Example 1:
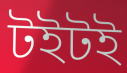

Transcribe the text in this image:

টইটই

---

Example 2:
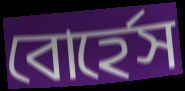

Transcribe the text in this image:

বোর্হেস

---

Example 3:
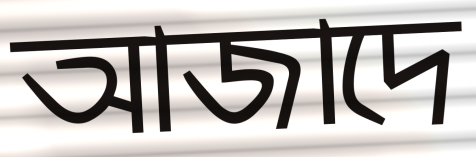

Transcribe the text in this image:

আজাদে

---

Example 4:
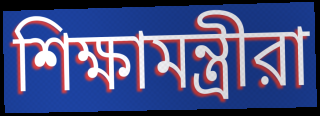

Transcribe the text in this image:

শিক্ষামন্ত্রীরা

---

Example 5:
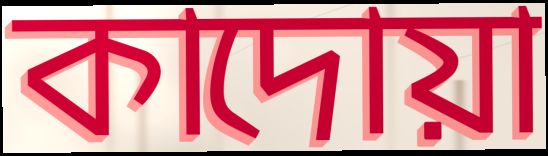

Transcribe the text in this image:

কাদোয়া